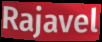
Rajavel